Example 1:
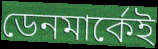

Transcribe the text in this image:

ডেনমার্কেই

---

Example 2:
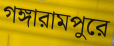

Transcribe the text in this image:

গঙ্গারামপুরে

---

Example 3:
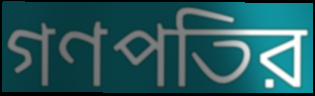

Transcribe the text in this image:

গণপতির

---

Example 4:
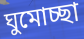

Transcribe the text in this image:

ঘুমোচ্ছা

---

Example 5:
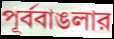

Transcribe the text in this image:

পূর্ববাঙলার